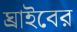
ঘ্রাইবের